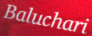
Baluchari